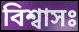
বিশ্বাসঃ